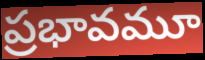
ప్రభావమూ